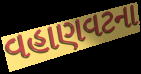
વહાણવટના